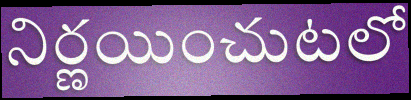
నిర్ణయించుటలో